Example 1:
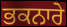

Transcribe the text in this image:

ਭਕਨਾਰੇ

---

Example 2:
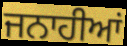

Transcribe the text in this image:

ਜਨਾਹੀਆਂ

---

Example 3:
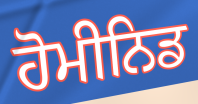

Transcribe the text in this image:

ਹੋਮੀਨਿਡ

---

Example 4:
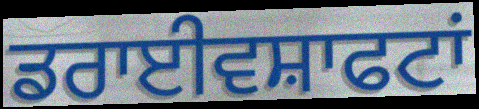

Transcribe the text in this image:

ਡਰਾਈਵਸ਼ਾਫਟਾਂ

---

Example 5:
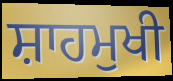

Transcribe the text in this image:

ਸ਼ਾਹਮੁਖੀ